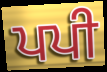
ਪਪੀ